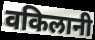
वकिलानी